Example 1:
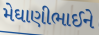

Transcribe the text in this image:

મેઘાણીભાઈને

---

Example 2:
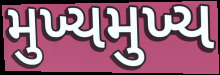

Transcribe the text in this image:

મુખ્યમુખ્ય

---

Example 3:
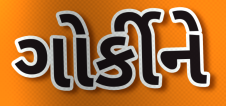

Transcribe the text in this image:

ગોર્કીને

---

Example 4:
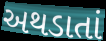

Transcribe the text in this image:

અથડાતાં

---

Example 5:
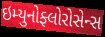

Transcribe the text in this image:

ઇમ્યુનોફ્લોરોસેન્સ